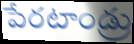
పేరటాండ్రు